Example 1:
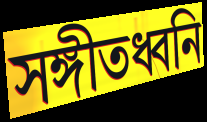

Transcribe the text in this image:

সঙ্গীতধ্বনি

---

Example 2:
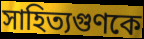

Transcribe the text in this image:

সাহিত্যগুণকে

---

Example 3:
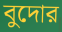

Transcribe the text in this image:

বুদোর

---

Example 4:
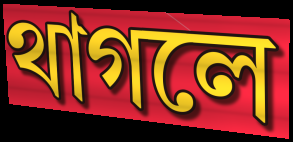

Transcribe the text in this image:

থাগলে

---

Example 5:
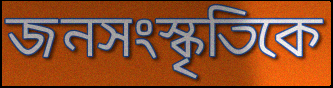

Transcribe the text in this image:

জনসংস্কৃতিকে